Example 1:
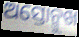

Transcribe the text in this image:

ଅସ୍ତୋନ୍ମୁଖ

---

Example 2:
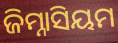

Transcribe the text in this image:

ଜିମ୍ନାସିୟମ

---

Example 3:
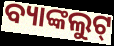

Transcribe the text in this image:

ବ୍ୟାଙ୍କଲୁଟ୍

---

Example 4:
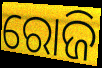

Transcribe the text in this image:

ରୋଜି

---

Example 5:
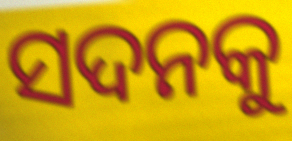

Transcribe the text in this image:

ସଦନକୁ